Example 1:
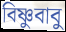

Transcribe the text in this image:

বিষ্ণুবাবু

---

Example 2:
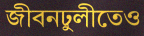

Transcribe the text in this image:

জীবনঢুলীতেও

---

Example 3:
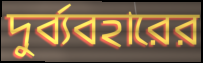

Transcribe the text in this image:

দুর্ব্যবহারের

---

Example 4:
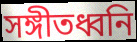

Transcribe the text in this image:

সঙ্গীতধ্বনি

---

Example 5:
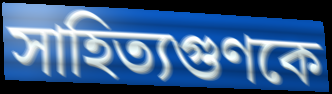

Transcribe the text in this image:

সাহিত্যগুণকে